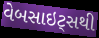
વેબસાઇટ્સથી